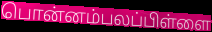
பொன்னம்பலப்பிள்ளை